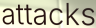
attacks